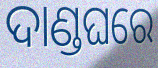
ଦାଣ୍ଡଘରେ